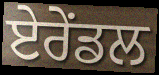
ਏਰੇਂਡਲ